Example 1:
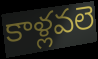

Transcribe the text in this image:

కాళ్లవలె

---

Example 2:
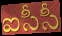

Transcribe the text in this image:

ఐసీసీ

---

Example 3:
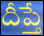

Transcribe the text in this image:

దీప్తే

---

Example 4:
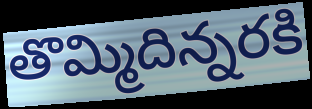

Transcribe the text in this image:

తొమ్మిదిన్నరకి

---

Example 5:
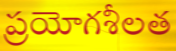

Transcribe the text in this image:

ప్రయోగశీలత